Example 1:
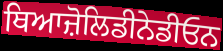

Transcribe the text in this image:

ਥਿਆਜ਼ੋਲਿਡੀਨੇਡੀਓਨ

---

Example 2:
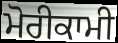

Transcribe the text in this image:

ਮੋਰੀਕਾਮੀ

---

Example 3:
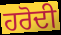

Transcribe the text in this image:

ਹਰੋਦੀ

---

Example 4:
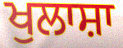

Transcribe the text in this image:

ਖੁਲਾਸ਼ਾ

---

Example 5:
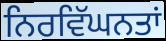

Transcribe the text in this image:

ਨਿਰਵਿੱਘਨਤਾਂ